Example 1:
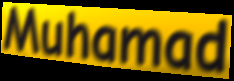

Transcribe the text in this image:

Muhamad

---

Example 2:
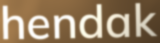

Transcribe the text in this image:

hendak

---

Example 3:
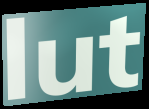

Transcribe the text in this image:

lut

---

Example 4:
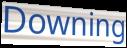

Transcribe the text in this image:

Downing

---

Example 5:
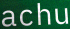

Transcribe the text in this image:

achu